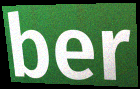
ber